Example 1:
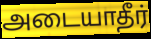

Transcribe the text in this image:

அடையாதீர்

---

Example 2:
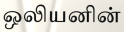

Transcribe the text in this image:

ஒலியனின்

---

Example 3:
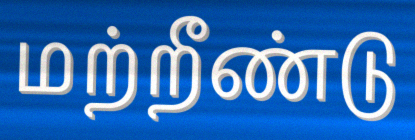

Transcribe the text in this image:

மற்றீண்டு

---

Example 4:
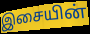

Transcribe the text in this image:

இசையின்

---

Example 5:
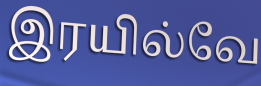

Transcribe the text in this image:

இரயில்வே